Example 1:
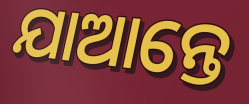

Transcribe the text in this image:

ଯାଆନ୍ତେ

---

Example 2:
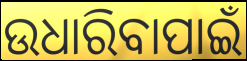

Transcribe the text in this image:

ଉଧାରିବାପାଇଁ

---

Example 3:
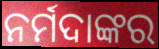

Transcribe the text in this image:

ନର୍ମଦାଙ୍କର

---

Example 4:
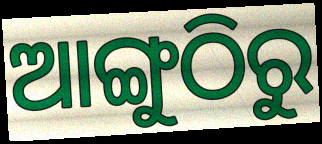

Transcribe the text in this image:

ଆଙ୍ଗୁଠିରୁ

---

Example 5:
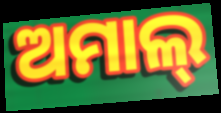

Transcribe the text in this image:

ଅମାଲ୍